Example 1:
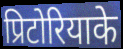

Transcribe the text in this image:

प्रिटोरियाके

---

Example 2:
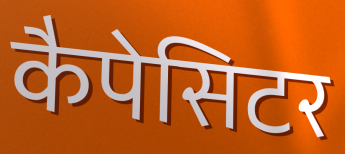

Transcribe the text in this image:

कैपेसिटर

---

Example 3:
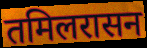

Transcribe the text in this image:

तमिलरासन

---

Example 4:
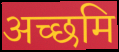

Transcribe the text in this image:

अच्छमि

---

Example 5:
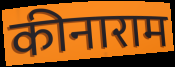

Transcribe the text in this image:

कीनाराम